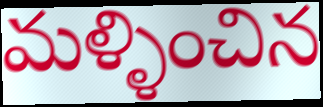
మళ్ళించిన